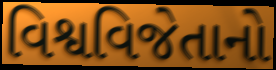
વિશ્વવિજેતાનો